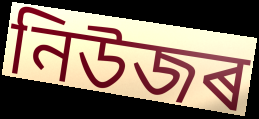
নিউজৰ